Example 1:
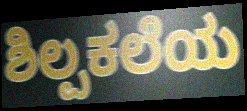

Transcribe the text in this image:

ಶಿಲ್ಪಕಲೆಯ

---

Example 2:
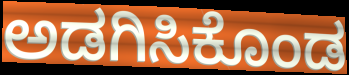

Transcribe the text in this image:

ಅಡಗಿಸಿಕೊಂಡ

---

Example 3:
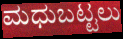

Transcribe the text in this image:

ಮಧುಬಟ್ಟಲು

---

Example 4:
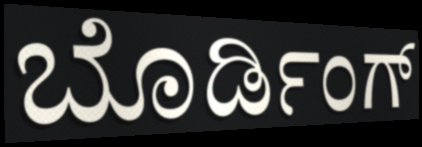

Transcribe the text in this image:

ಬೊರ್ಡಿಂಗ್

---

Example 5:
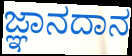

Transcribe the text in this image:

ಜ್ಞಾನದಾನ